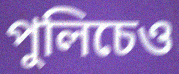
পুলিচেও